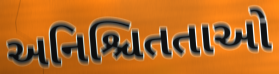
અનિશ્ચિતતાઓ